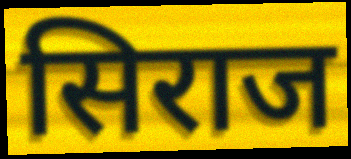
सिराज